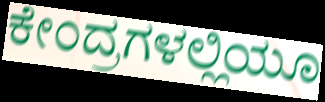
ಕೇಂದ್ರಗಳಲ್ಲಿಯೂ